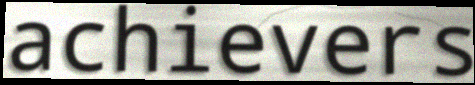
achievers